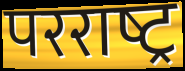
परराष्ट्र